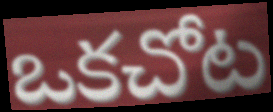
ఒకచోట